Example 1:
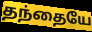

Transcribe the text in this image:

தந்தையே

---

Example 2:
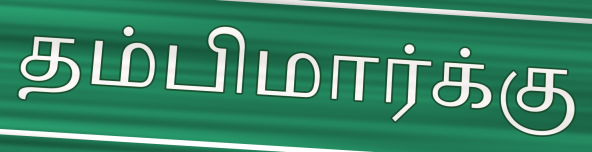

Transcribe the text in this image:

தம்பிமார்க்கு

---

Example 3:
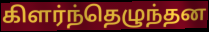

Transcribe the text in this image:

கிளர்ந்தெழுந்தன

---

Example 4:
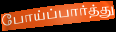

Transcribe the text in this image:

போய்ப்பார்த்து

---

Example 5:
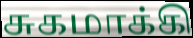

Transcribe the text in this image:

சுகமாக்கி